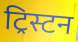
ट्रिस्टन